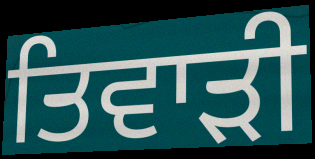
ਤਿਵਾੜੀ